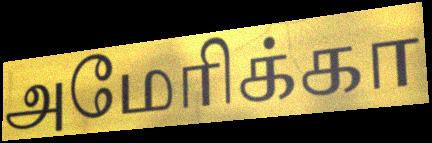
அமேரிக்கா